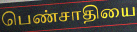
பெண்சாதியை